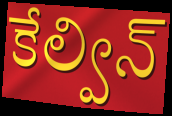
కేల్విన్